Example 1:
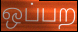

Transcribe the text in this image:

ஒப்பற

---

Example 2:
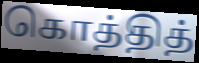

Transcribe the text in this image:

கொத்தித்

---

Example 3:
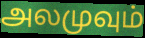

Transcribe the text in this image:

அலமுவும்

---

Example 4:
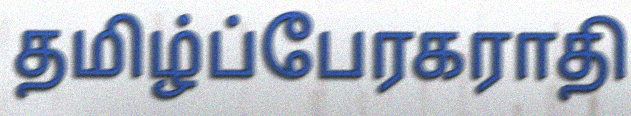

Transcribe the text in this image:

தமிழ்ப்பேரகராதி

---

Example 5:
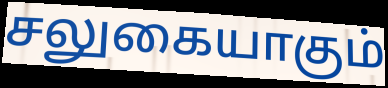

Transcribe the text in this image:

சலுகையாகும்